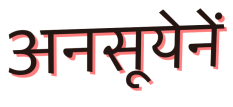
अनसूयेनें